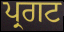
ਪ੍ਰਗਟ